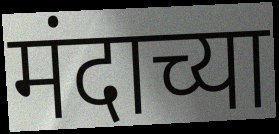
मंदाच्या